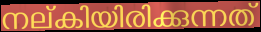
നല്‌കിയിരിക്കുന്നത്